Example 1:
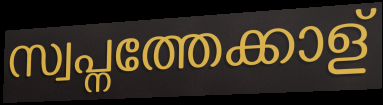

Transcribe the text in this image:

സ്വപ്നത്തേക്കാള്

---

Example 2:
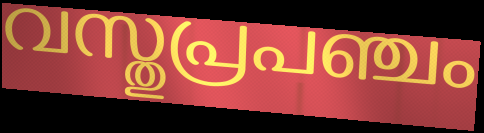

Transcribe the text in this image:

വസ്തുപ്രപഞ്ചം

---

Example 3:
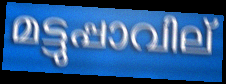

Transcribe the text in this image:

മട്ടുപ്പാവില്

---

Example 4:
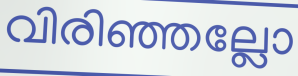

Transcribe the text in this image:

വിരിഞ്ഞല്ലോ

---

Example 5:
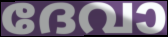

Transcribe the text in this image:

ദേവാ